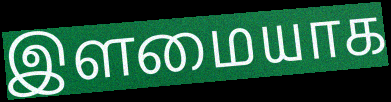
இளமையாக